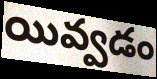
యివ్వడం